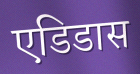
एडिडास